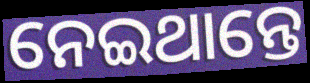
ନେଇଥାନ୍ତେ